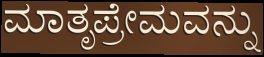
ಮಾತೃಪ್ರೇಮವನ್ನು